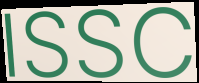
ISSC